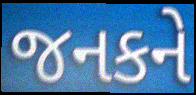
જનકને